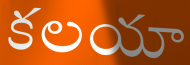
కలయా